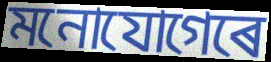
মনোযোগেৰে